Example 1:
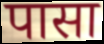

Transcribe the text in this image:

पासा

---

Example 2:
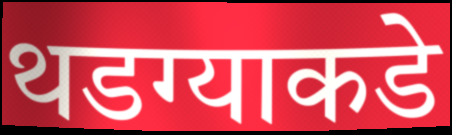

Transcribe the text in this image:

थडग्याकडे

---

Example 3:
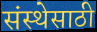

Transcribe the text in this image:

संस्थेसाठी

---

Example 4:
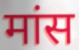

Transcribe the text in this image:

मांस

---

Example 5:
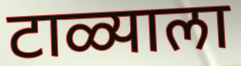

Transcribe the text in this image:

टाळ्याला